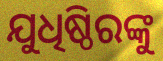
ଯୁଧିଷ୍ଠିରଙ୍କୁ